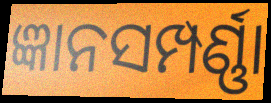
ଜ୍ଞାନସମ୍ପର୍ଣ୍ଣା